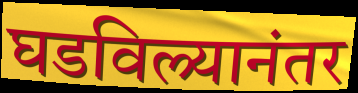
घडविल्यानंतर